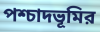
পশ্চাদভূমির